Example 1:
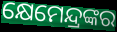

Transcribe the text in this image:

କ୍ଷେମେନ୍ଦ୍ରଙ୍କର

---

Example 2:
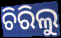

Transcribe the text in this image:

ଚିରିଲୁ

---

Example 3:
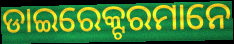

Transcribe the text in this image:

ଡାଇରେକ୍ଟରମାନେ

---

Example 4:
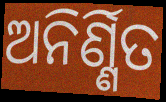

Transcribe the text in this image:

ଅନିର୍ଣ୍ଣିତ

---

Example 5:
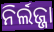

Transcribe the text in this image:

ନିର୍ଲଜ୍ଜା